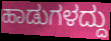
ಹಾಡುಗಳದ್ದು